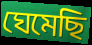
ঘেমেছি